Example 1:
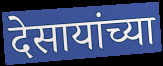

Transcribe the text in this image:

देसायांच्या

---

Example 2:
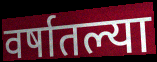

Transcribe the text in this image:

वर्षातल्या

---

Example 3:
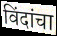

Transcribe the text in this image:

विंदांचा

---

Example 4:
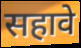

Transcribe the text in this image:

सहावे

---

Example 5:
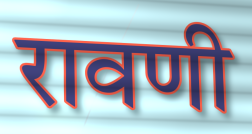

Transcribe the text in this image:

रावणी